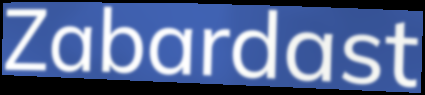
Zabardast